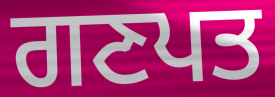
ਗਣਪਤ